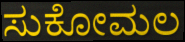
ಸುಕೋಮಲ